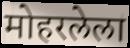
मोहरलेला